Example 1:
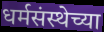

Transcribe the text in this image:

धर्मसंस्थेच्या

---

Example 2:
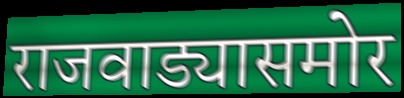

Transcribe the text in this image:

राजवाड्यासमोर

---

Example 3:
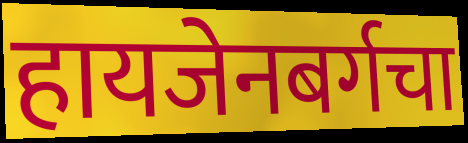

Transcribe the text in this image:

हायजेनबर्गचा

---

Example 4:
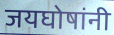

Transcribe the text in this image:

जयघोषांनी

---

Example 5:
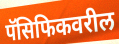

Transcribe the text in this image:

पॅसिफिकवरील